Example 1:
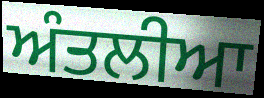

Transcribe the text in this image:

ਅੰਤਲੀਆ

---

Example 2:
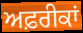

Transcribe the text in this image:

ਅਫ਼ਰੀਕਾਂ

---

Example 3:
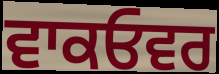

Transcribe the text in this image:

ਵਾਕਓਵਰ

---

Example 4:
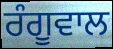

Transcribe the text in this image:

ਰੰਗੂਵਾਲ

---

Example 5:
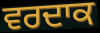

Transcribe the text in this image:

ਵਰਦਾਕ